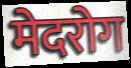
मेदरोग